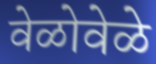
वेळोवेळे